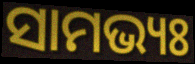
ସାମଭ୍ୟଃ